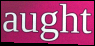
aught